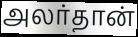
அலர்தான்